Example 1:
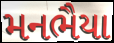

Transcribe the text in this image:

મનભૈયા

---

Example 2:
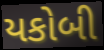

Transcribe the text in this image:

યકોબી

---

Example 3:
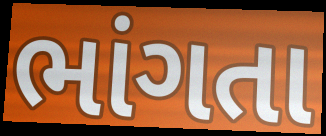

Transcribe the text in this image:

ભાંગતા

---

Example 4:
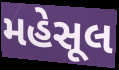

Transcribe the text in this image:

મહેસૂલ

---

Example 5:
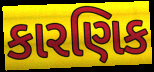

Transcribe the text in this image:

કારણિક